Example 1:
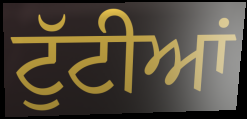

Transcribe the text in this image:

ਟੁੱਟੀਆਂ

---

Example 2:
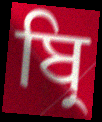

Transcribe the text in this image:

ਬ੍ਰਿ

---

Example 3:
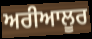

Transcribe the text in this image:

ਅਰੀਆਲੂਰ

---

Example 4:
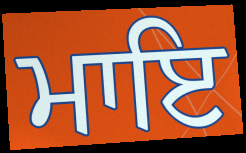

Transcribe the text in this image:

ਮਾਇ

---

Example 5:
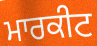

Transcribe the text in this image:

ਮਾਰਕੀਟ